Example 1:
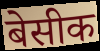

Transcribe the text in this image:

बेसीक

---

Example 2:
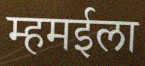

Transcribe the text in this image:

म्हमईला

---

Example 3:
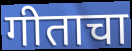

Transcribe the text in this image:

गीताचा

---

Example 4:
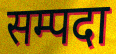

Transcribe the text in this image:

सम्पदा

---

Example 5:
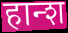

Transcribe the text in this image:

हान्श